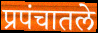
प्रपंचातले